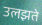
उलझते